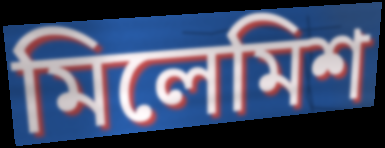
মিলেমিশ